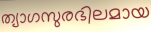
ത്യാഗസുരഭിലമായ